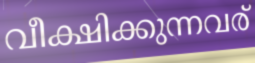
വീക്ഷിക്കുന്നവര്